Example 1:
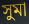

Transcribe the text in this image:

সুমা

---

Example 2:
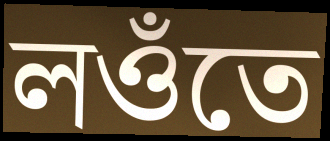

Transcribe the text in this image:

লওঁতে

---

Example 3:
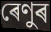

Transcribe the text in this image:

ৰেণুৰ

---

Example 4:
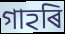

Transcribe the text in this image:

গাহৰি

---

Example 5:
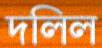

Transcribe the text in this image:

দলিল